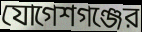
যোগেশগঞ্জের